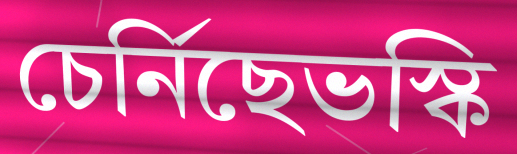
চেৰ্নিছেভস্কি